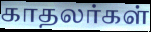
காதலர்கள்